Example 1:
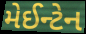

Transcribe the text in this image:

મેઈન્ટેન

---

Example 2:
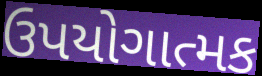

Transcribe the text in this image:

ઉપયોગાત્મક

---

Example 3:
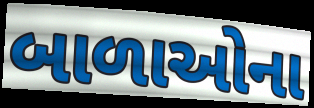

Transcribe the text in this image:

બાળાઓના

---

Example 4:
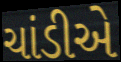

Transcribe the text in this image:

ચાંડીએ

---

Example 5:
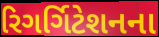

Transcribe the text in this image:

રિગર્ગિટેશનના